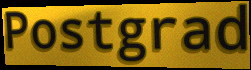
Postgrad